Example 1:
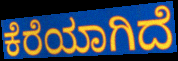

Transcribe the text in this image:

ಕೆರೆಯಾಗಿದೆ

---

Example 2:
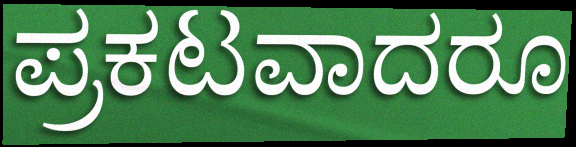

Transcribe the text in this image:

ಪ್ರಕಟವಾದರೂ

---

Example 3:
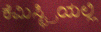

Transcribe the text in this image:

ಕೆಮಿಸ್ಟ್ರಿಯಲ್ಲಿ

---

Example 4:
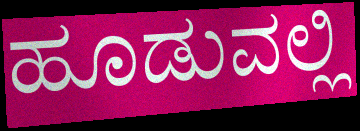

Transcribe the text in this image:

ಹೂಡುವಲ್ಲಿ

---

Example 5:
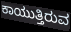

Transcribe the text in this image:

ಕಾಯುತ್ತಿರುವ